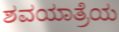
ಶವಯಾತ್ರೆಯ